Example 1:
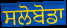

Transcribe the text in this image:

ਸਲੋਬੋਡਾ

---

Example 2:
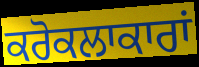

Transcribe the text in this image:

ਕਰੋਕਲਾਕਾਰਾਂ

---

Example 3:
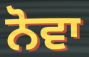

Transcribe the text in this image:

ਨੋਵਾ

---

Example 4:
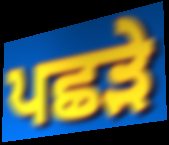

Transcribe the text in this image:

ਪਛੜੇ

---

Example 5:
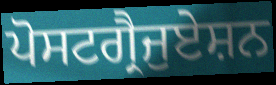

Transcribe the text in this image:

ਪੋਸਟਗ੍ਰੈਜੁਏਸ਼ਨ